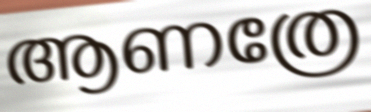
ആണത്രേ